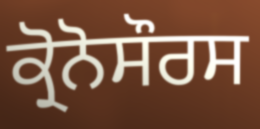
ਕ੍ਰੋਨੋਸੌਰਸ